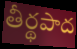
తీర్థపాద